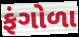
ફંગોળા